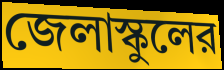
জেলাস্কুলের